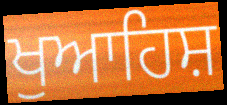
ਖੁਆਹਿਸ਼